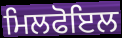
ਮਿਲਫੋਇਲ